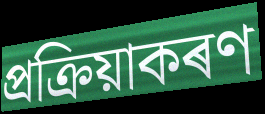
প্ৰক্ৰিয়াকৰণ